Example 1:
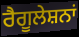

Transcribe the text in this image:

ਰੈਗੂਲੇਸ਼ਨਾਂ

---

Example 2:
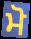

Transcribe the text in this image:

ਮੋ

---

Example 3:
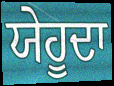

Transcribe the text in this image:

ਯੇਹੂਦਾ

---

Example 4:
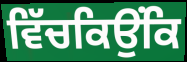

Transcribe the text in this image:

ਵਿੱਚਕਿਉਂਕਿ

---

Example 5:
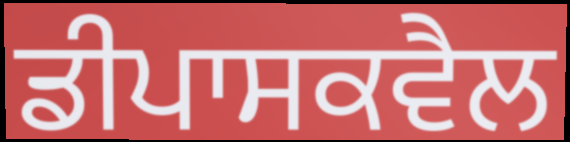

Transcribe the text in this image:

ਡੀਪਾਸਕਵੈਲ